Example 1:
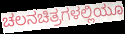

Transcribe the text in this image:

ಚಲನಚಿತ್ರಗಳಲ್ಲಿಯೂ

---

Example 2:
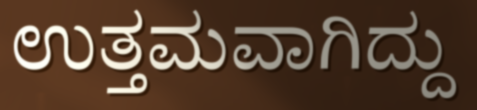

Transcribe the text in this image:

ಉತ್ತಮವಾಗಿದ್ದು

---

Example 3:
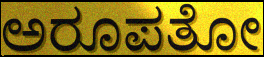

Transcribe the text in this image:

ಅರೂಪತೋ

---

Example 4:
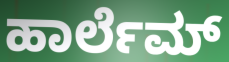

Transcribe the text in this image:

ಹಾರ್ಲೆಮ್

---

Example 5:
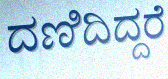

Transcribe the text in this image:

ದಣಿದಿದ್ದರೆ